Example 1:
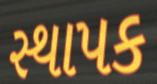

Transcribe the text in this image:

સ્થાપક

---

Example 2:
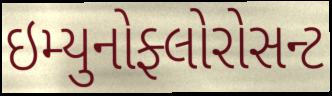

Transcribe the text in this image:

ઇમ્યુનોફ્લોરોસન્ટ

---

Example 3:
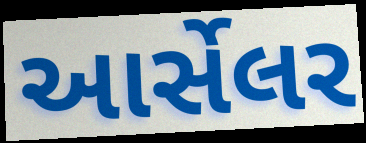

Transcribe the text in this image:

આર્સેલર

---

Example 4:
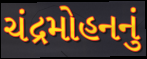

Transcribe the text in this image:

ચંદ્રમોહનનું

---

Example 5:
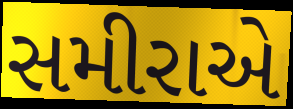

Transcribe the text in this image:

સમીરાએ